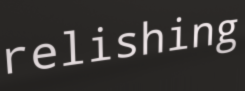
relishing